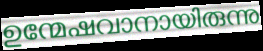
ഉന്മേഷവാനായിരുന്നു